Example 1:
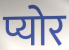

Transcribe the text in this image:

प्योर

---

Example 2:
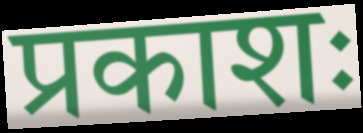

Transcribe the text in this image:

प्रकाशः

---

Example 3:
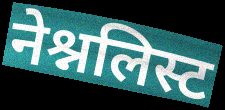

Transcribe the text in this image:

नेश्नलिस्ट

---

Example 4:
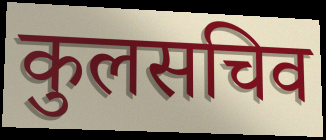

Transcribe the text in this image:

कुलसचिव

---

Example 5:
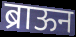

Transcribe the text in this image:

ब्राऊन